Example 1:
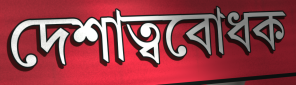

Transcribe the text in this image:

দেশাত্ববোধক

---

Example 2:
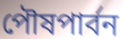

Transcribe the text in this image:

পৌষপার্বন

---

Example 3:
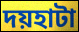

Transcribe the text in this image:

দয়হাটা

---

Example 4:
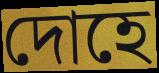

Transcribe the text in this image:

দোহে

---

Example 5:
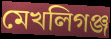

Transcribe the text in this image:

মেখলিগঞ্জ